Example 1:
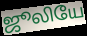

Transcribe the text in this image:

ஜூலியே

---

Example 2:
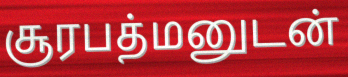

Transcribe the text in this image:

சூரபத்மனுடன்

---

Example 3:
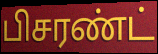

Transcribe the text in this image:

பிசரண்ட்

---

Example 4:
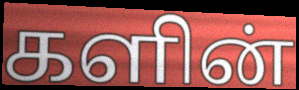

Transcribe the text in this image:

களின்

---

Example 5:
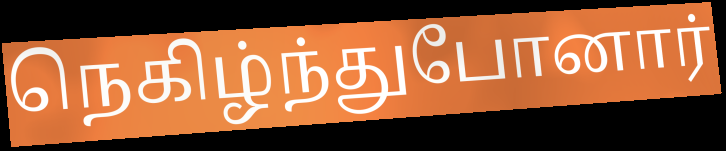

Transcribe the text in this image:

நெகிழ்ந்துபோனார்